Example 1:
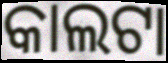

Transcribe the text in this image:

କାଲଟା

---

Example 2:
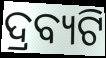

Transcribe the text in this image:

ଦ୍ରବ୍ୟଟି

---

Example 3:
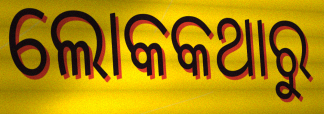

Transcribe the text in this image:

ଲୋକକଥାରୁ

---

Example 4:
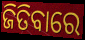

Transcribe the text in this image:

ଜିତିବାରେ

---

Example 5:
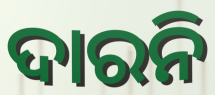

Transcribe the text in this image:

ଦାରନି